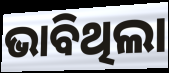
ଭାବିଥିଲା